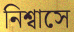
নিশ্বাসে